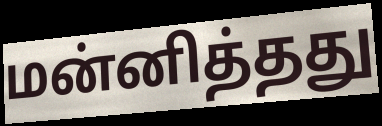
மன்னித்தது